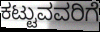
ಕಟ್ಟುವವರಿಗೆ